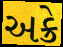
અક્રે